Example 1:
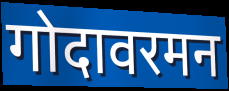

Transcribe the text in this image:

गोदावरमन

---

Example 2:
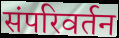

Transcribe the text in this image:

संपरिवर्तन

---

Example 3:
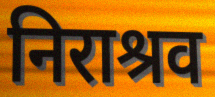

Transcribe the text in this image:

निराश्रव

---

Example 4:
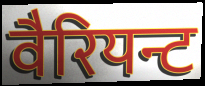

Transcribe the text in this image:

वैरियन्ट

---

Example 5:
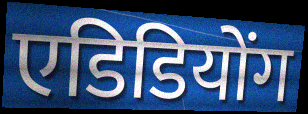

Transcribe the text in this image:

एडिडियोंग